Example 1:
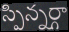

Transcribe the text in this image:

స్పిన్నర్గా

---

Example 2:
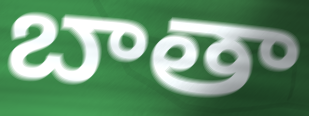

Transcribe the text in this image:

బాతా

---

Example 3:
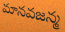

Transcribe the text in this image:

మానవజన్మ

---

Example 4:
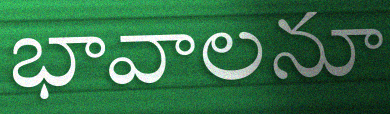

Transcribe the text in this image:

భావాలనూ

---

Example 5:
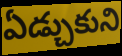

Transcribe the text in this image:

ఏడ్చుకుని